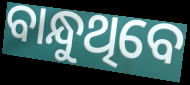
ବାନ୍ଧୁଥିବେ